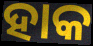
ହାକ